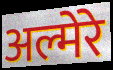
अल्मेरे